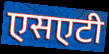
एसएटी